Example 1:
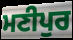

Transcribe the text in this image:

ਮਣੀਪੁਰ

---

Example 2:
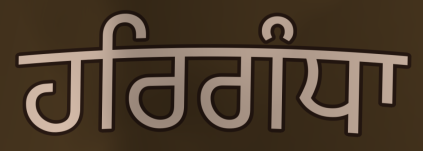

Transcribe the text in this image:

ਹਰਿਗੰਧਾ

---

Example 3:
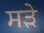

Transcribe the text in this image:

ਸੜੇ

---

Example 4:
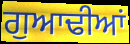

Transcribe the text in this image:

ਗੁਆਢੀਆਂ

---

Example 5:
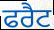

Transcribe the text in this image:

ਫਰੈਟ